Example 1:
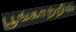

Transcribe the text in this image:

பூங்காற்றில்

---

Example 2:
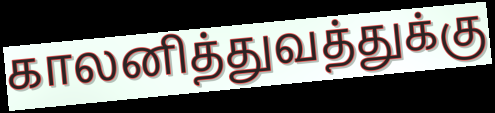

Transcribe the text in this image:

காலனித்துவத்துக்கு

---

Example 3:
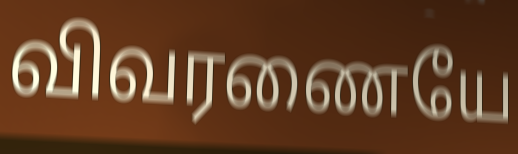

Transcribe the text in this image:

விவரணையே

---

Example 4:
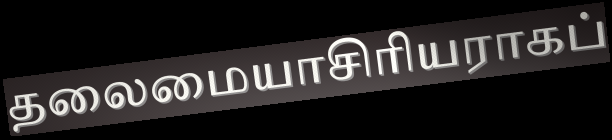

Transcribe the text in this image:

தலைமையாசிரியராகப்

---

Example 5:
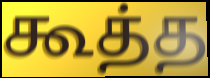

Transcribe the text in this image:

கூத்த